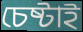
চেষ্টাই